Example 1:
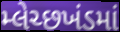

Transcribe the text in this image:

મ્લેચ્છખંડમાં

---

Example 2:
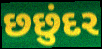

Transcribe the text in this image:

છછુંદર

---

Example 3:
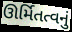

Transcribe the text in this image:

ઊર્મિતત્વનું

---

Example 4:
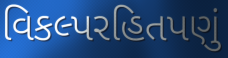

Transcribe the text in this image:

વિકલ્પરહિતપણું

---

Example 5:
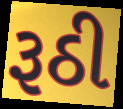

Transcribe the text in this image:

રૂઠી